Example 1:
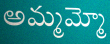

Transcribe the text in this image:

అమ్మమ్మో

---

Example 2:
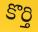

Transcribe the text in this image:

కొర్తి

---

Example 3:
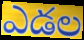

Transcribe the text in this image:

ఎడల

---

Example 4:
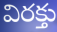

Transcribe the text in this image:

విరక్తు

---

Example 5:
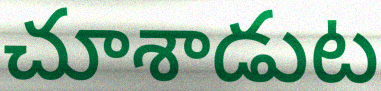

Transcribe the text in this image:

చూశాడుట